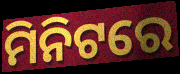
ମିନିଟରେ